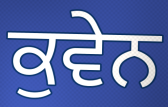
ਕੁਵੇਨ